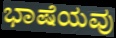
ಭಾಷೆಯವು